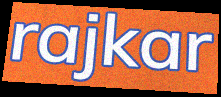
rajkar